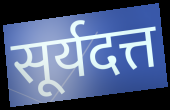
सूर्यदत्त